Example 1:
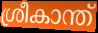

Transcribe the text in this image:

ശ്രീകാന്ത്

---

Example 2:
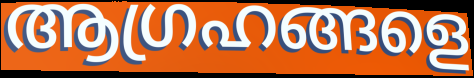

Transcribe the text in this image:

ആഗ്രഹങ്ങളെ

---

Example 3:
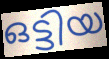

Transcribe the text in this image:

ഒട്ടിയ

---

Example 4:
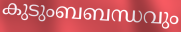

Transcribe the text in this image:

കുടുംബബന്ധവും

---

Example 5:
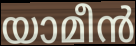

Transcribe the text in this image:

യാമീൻ